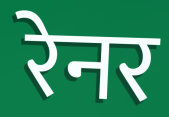
रेनर